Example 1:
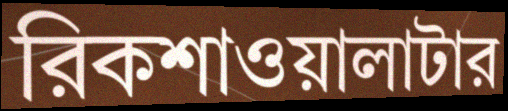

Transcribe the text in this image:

রিকশাওয়ালাটার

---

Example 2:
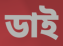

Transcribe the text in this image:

ডাই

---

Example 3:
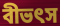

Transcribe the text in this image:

বীভৎস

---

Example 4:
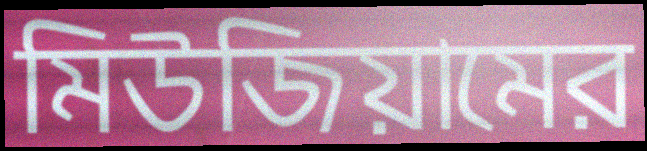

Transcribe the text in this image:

মিউজিয়ামের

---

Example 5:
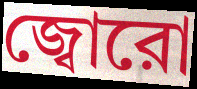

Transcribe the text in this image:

জ্বোরো